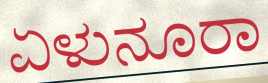
ಏಳುನೂರಾ